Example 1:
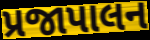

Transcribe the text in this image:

પ્રજાપાલન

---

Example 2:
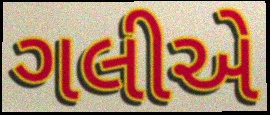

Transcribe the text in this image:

ગલીએ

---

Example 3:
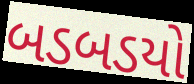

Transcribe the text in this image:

બડબડયો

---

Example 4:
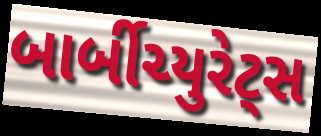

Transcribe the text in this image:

બાર્બીચ્યુરેટ્સ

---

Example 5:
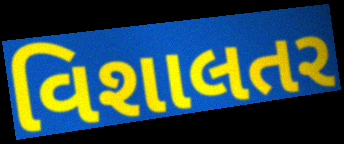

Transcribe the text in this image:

વિશાલતર